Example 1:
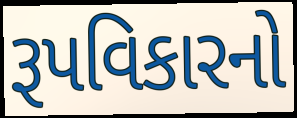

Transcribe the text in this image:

રૂપવિકારનો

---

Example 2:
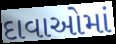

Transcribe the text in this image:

દાવાઓમાં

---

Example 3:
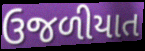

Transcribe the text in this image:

ઉજળીયાત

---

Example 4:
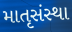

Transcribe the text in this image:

માતૃસંસ્થા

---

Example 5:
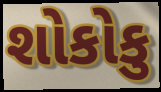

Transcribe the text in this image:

શોકોકુ